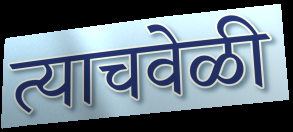
त्याचवेळी